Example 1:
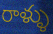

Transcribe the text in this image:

రాళ్ళు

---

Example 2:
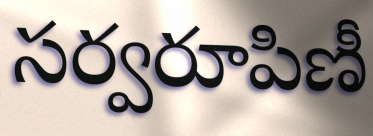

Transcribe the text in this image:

సర్వరూపిణీ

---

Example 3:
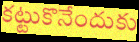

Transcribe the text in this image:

కట్టుకొనేందుకు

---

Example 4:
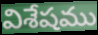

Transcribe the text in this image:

విశేషము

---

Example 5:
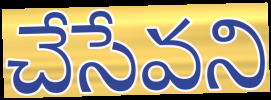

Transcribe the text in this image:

చేసేవని